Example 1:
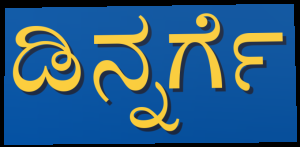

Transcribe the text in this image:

ಡಿನ್ನರ್ಗೆ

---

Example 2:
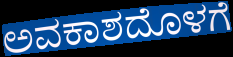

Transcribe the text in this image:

ಅವಕಾಶದೊಳಗೆ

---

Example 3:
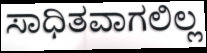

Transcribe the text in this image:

ಸಾಧಿತವಾಗಲಿಲ್ಲ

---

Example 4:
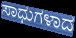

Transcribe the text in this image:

ಸಾಧುಗಳಾದ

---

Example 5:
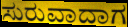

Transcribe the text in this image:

ಸುರುವಾದಾಗ